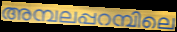
അമ്പലപ്പറമ്പിലെ